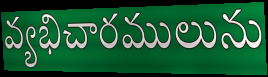
వ్యభిచారములును